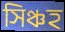
সিঞ্চহ